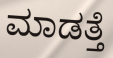
ಮಾಡತ್ತೆ